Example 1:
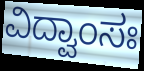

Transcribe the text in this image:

ವಿದ್ವಾಂಸಃ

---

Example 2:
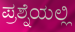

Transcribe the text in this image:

ಪ್ರಶ್ನೆಯಲ್ಲಿ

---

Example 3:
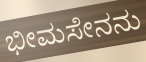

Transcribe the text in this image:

ಭೀಮಸೇನನು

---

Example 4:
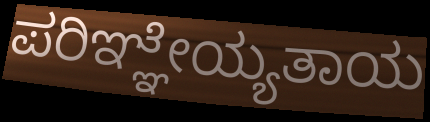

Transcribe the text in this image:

ಪರಿಞ್ಞೇಯ್ಯತಾಯ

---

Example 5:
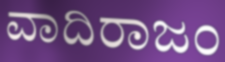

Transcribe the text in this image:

ವಾದಿರಾಜಂ